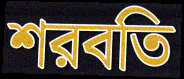
শরবতি